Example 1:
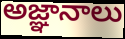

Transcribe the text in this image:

అజ్ఞానాలు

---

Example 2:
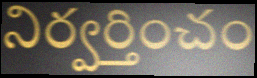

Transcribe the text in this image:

నిర్వర్తించం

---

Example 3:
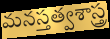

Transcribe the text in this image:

మనస్తత్వశాస్త్ర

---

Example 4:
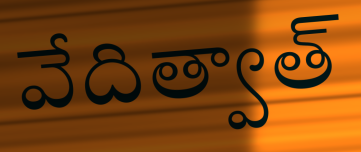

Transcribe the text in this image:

వేదిత్వాత్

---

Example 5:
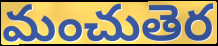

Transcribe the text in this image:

మంచుతెర